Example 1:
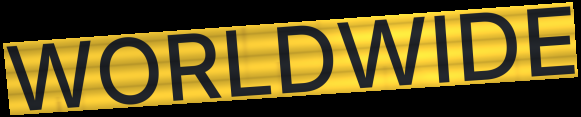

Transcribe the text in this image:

WORLDWIDE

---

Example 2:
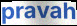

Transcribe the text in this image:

pravah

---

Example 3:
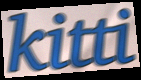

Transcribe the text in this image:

kitti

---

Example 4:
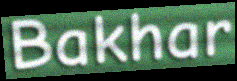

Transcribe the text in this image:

Bakhar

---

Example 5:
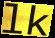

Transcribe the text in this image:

lk